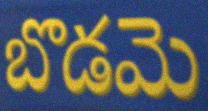
బొడమె